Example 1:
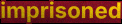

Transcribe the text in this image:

imprisoned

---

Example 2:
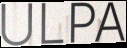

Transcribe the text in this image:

ULPA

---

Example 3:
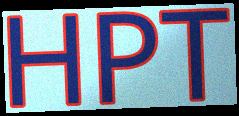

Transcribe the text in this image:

HPT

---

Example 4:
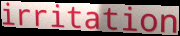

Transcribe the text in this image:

irritation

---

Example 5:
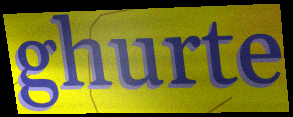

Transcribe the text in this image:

ghurte